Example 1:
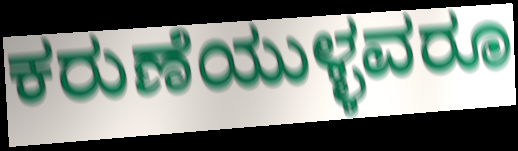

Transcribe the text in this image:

ಕರುಣೆಯುಳ್ಳವರೂ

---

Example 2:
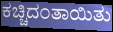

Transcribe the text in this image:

ಕಚ್ಚಿದಂತಾಯಿತು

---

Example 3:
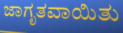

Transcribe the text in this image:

ಜಾಗೃತವಾಯಿತು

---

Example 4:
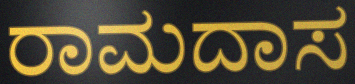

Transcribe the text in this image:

ರಾಮದಾಸ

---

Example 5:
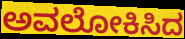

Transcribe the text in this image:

ಅವಲೋಕಿಸಿದ